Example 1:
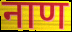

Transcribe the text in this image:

नाण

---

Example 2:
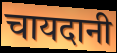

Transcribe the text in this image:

चायदानी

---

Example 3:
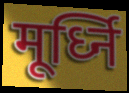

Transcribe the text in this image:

मूर्ध्नि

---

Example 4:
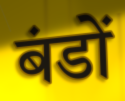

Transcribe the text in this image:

बंडों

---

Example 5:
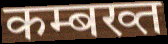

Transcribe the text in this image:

कम्बख्त